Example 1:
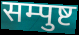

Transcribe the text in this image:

सम्पुष्ट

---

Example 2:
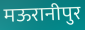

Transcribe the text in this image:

मऊरानीपुर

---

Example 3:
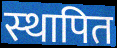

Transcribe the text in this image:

स्‍थापित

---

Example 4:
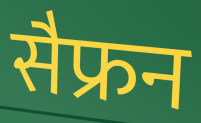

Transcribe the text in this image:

सैफ्रन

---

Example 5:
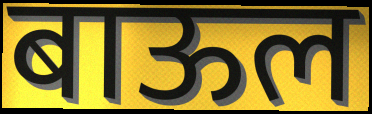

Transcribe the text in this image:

बाऊल